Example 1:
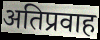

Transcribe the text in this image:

अतिप्रवाह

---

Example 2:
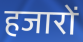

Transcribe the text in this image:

हजारों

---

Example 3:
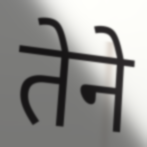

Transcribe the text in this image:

तेने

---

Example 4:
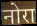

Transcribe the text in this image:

नोरा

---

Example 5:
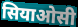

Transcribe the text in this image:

सियाओसी